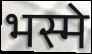
भस्मे